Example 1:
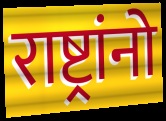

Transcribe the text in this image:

राष्ट्रांनो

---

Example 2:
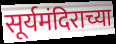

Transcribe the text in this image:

सूर्यमंदिराच्या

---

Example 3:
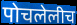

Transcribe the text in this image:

पोचलेलीच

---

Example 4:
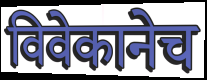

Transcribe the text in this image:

विवेकानेच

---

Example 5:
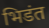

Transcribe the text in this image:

भिडंत